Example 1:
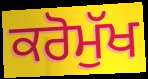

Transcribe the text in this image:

ਕਰੋਮੁੱਖ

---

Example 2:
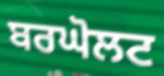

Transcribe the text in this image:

ਬਰਘੋਲਟ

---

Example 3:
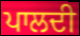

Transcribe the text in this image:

ਪਾਲਦੀ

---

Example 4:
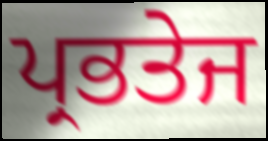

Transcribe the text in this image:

ਪ੍ਰਭਤੇਜ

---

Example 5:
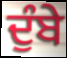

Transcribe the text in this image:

ਦੁੰਬੇ